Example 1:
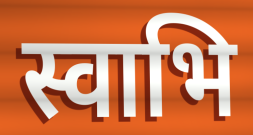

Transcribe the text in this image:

स्वाभि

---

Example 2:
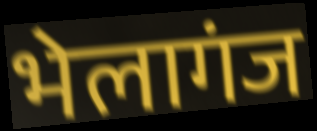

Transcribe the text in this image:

भेलागंज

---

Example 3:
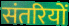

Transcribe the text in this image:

संतरियों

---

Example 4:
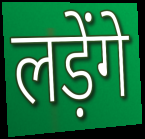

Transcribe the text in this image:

लड़ेंगे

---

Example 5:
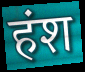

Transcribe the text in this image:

हंश